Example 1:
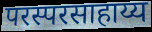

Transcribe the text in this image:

परस्परसाहाय्य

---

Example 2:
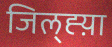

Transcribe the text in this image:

जिल्ह्य़ा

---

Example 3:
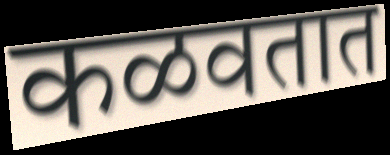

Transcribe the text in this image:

कळवतात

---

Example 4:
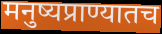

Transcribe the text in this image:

मनुष्यप्राण्यातच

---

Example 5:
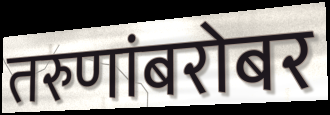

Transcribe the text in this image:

तरुणांबरोबर